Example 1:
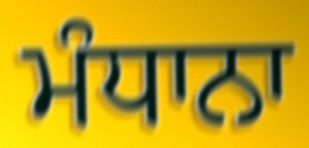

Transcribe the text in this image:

ਮੰਧਾਨਾ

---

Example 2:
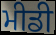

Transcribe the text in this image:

ਮੀਡੀ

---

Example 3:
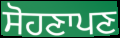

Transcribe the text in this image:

ਸੋਹਣਾਪਣ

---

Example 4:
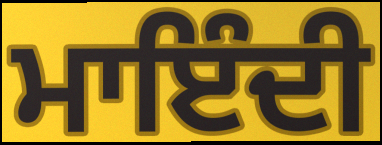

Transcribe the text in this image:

ਮਾਇੰਦੀ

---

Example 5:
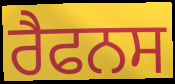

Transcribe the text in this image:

ਰੈਫਨਸ